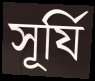
সূর্যি